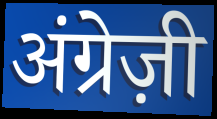
अंग्रेज़ी